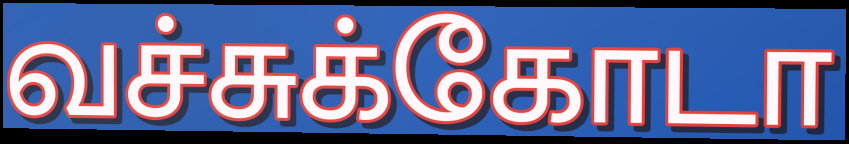
வச்சுக்கோடா